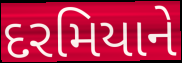
દરમિયાને